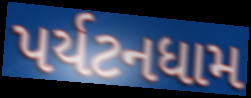
પર્યટનધામ